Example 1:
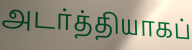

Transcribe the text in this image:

அடர்த்தியாகப்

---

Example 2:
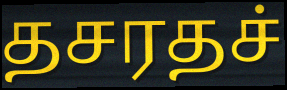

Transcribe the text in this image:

தசரதச்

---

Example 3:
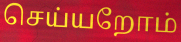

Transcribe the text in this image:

செய்யறோம்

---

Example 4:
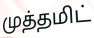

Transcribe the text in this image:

முத்தமிட்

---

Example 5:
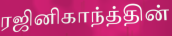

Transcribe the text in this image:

ரஜினிகாந்த்தின்